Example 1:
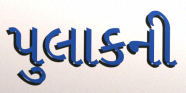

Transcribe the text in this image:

પુલાકની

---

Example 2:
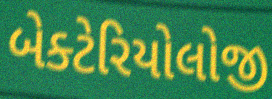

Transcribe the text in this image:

બેક્ટેરિયોલોજી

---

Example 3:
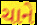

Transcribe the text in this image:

ચાને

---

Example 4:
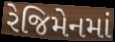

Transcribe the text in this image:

રેજિમેનમાં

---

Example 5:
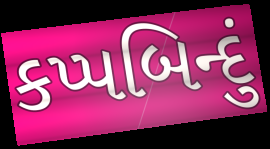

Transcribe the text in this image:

કપ્પબિન્દું